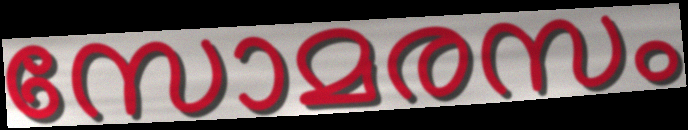
സോമരസം